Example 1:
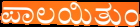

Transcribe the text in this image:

ಪಾಲಯಿತುಂ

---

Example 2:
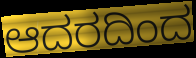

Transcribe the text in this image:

ಆದರದಿಂದ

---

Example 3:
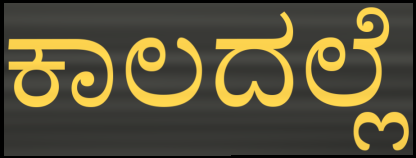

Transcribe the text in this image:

ಕಾಲದಲ್ಲೆ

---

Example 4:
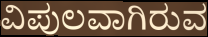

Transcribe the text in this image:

ವಿಪುಲವಾಗಿರುವ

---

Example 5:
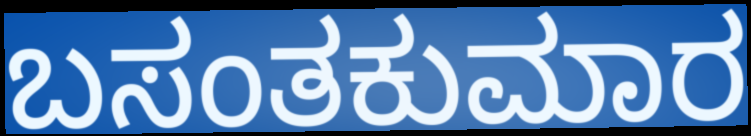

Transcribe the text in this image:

ಬಸಂತಕುಮಾರ